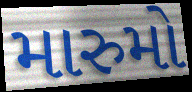
મારુમો